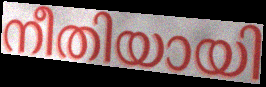
നീതിയായി